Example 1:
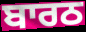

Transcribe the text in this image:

ਬਾਰਠ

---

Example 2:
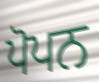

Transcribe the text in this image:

ਪੋਪਨ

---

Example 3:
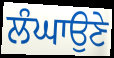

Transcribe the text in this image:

ਲੰਘਾਉਣੇ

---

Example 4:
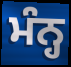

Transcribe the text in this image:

ਮੰਨ੍ਹ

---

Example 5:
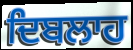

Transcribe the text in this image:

ਦਿਬਲਾਹ